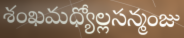
శంఖమధ్యోల్లసన్మంజు